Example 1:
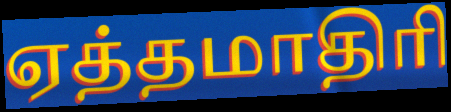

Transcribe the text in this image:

ஏத்தமாதிரி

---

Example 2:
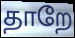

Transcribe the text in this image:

தாறே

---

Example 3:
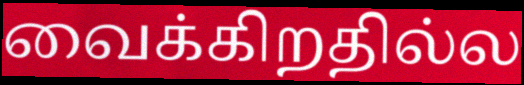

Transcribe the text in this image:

வைக்கிறதில்ல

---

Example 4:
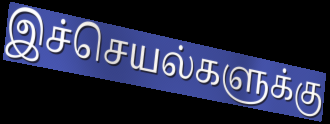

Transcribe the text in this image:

இச்செயல்களுக்கு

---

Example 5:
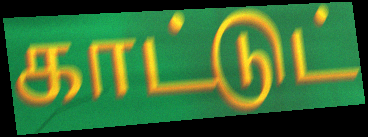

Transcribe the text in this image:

காட்டுட்